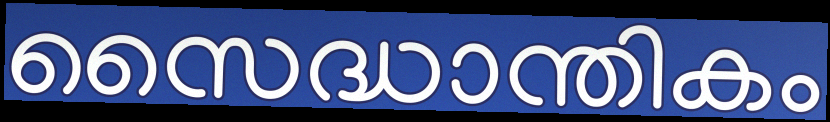
സൈദ്ധാന്തികം